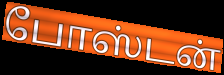
போஸ்டன்